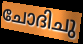
ചോദിചു